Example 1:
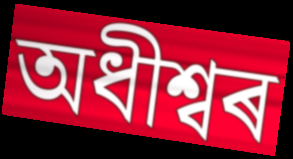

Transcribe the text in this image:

অধীশ্বৰ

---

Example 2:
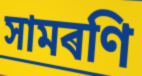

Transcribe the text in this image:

সামৰণি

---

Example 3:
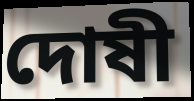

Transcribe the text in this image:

দোষী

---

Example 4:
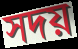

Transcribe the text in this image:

সদয়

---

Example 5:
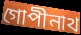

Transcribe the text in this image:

গোপীনাথ